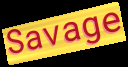
Savage